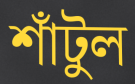
শাঁটুল